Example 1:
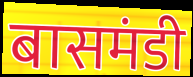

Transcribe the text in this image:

बासमंडी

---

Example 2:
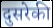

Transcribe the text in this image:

दुसरेकी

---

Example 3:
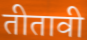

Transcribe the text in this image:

तीतावी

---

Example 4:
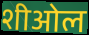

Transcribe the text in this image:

शीओल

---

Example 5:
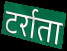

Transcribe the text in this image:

टर्राता